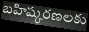
బహిష్కరణలకు